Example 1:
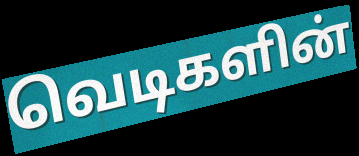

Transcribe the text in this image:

வெடிகளின்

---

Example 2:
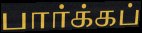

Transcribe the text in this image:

பார்க்கப்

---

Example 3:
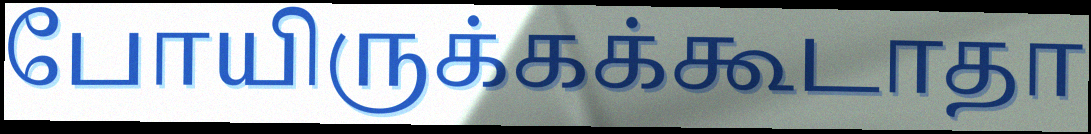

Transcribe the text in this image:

போயிருக்கக்கூடாதா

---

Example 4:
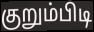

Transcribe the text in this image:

குறும்பிடி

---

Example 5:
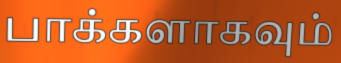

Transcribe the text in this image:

பாக்களாகவும்